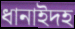
ধানাইদহ